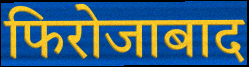
फिरोजाबाद